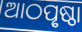
ଆଠପୃଷ୍ଠା